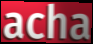
acha